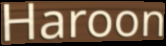
Haroon